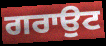
ਗਰਾਉਟ